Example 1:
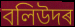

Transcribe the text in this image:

বলিউদৰ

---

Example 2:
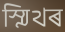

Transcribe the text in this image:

স্মিথৰ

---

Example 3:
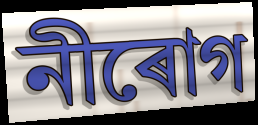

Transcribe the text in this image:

নীৰোগ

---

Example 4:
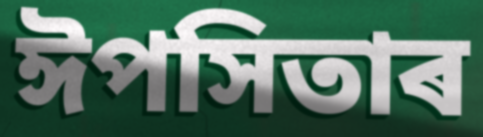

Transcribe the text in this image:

ঈপসিতাৰ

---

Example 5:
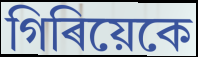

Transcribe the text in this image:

গিৰিয়েকে